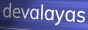
devalayas